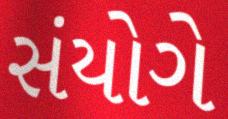
સંયોગે